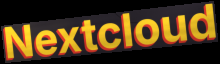
Nextcloud